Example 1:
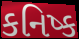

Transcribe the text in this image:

કનિષ્ક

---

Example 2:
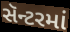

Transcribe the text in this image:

સૅન્ટરમાં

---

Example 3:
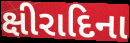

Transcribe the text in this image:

ક્ષીરાદિના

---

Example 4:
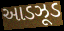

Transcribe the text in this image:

આડઝૂડ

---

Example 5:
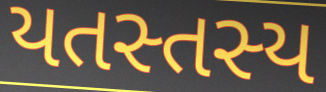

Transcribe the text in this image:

યતસ્તસ્ય